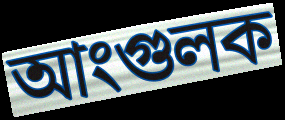
আংগুলক